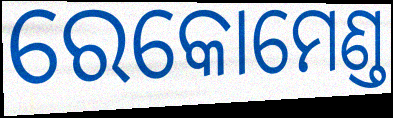
ରେକୋମେଣ୍ଡ